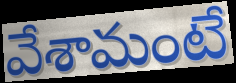
వేశామంటే